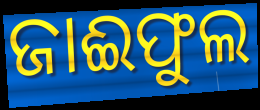
ଜାଈଫୁଲ